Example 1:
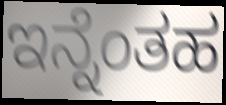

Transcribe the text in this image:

ಇನ್ನೆಂತಹ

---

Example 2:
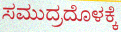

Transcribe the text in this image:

ಸಮುದ್ರದೊಳಕ್ಕೆ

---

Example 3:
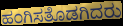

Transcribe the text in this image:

ಹಂಗಿಸತೊಡಗಿದರು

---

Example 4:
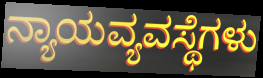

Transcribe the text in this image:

ನ್ಯಾಯವ್ಯವಸ್ಥೆಗಳು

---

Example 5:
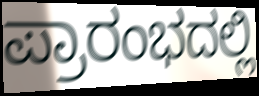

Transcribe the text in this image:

ಪ್ರಾರಂಭದಲ್ಲಿ